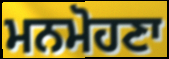
ਮਨਮੋਹਣਾ